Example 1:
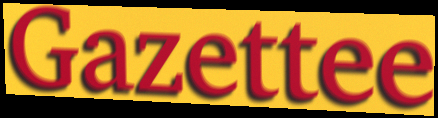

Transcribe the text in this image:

Gazettee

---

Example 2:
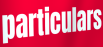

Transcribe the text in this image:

particulars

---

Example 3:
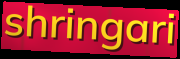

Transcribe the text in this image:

shringari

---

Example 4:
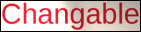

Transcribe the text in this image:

Changable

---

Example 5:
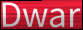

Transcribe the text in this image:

Dwar